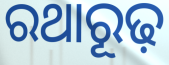
ରଥାରୂଢ଼